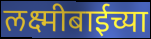
लक्ष्मीबाईच्या